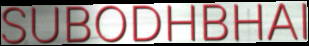
SUBODHBHAI